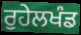
ਰੁਹੇਲਖੰਡ